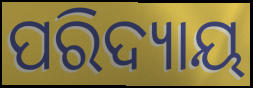
ପରିଦ୍ୟାୟ